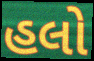
હલો